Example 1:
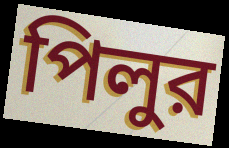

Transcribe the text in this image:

পিলুর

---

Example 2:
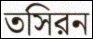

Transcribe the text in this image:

তসিরন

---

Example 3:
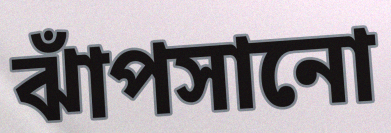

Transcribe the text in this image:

ঝাঁপসানো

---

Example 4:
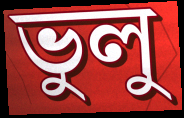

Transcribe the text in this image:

ভুলু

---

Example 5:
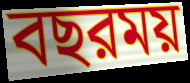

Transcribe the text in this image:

বছরময়